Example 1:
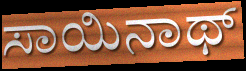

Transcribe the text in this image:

ಸಾಯಿನಾಥ್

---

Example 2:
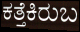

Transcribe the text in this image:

ಕತ್ತೆಕಿರುಬ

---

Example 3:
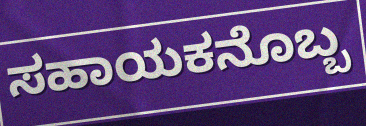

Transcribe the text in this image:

ಸಹಾಯಕನೊಬ್ಬ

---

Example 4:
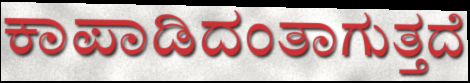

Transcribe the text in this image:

ಕಾಪಾಡಿದಂತಾಗುತ್ತದೆ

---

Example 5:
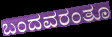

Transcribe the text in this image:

ಬಂದವರಂತೂ